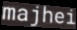
majhei